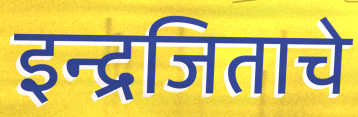
इन्द्रजिताचे